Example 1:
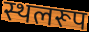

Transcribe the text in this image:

स्थलरूप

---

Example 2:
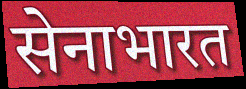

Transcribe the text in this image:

सेनाभारत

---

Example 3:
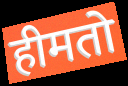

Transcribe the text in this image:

हीमतो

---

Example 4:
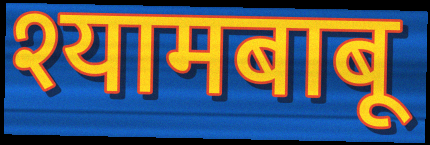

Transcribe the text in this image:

श्यामबाबू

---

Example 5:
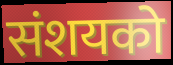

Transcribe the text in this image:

संशयको